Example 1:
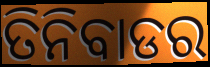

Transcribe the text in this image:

ତିନିବାଡର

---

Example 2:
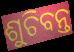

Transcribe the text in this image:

ଶୁଚିବନ୍ତ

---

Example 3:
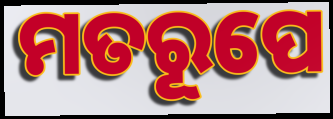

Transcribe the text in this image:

ମତରୂପେ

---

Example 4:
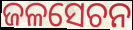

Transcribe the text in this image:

ଜଳସେଚନ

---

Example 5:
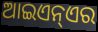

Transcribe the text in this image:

ଆଇଏନ୍ଏର